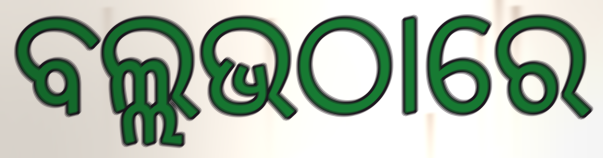
ବଲ୍ଲଭଠାରେ